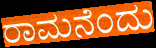
ರಾಮನೆಂದು